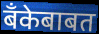
बँकेबाबत